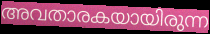
അവതാരകയായിരുന്ന